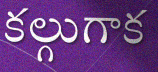
కల్గుగాక